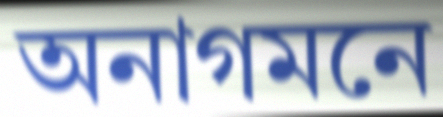
অনাগমনে